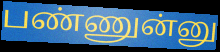
பண்ணுன்னு